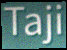
Taji